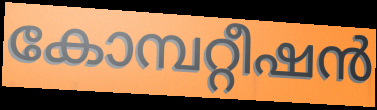
കോമ്പറ്റീഷൻ